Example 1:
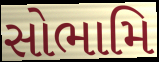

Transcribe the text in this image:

સોભામિ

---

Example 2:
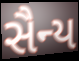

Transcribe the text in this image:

સૈન્ય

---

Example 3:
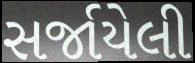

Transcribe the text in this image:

સર્જાયેલી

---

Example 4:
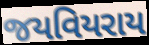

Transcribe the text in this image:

જયવિયરાય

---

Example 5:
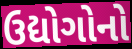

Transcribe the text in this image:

ઉદ્યોગોનો